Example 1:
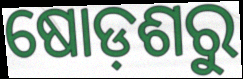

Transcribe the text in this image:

ଷୋଡ଼ଶରୁ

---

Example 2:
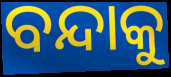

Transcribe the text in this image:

ବନ୍ଦାକୁ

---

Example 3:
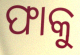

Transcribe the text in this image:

ଫାକୁ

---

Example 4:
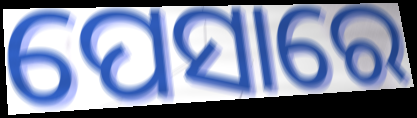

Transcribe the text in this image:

ପେସାରେ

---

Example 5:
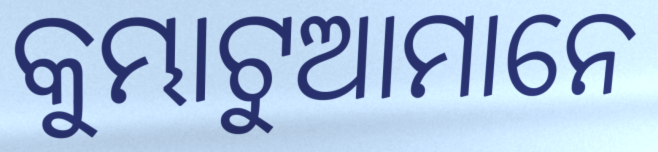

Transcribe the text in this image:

କୁମ୍ଭାଟୁଆମାନେ